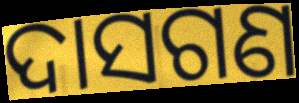
ଦାସଗଣ